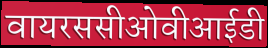
वायरससीओवीआईडी